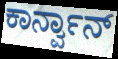
ಕಾರ್ನ್ವಾನ್